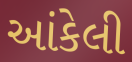
આંકેલી